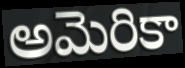
అమెరికా